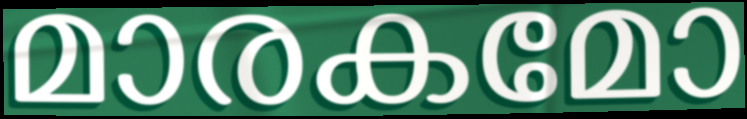
മാരകമോ